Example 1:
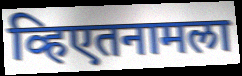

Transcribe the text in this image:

व्हिएतनामला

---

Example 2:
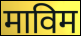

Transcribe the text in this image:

माविम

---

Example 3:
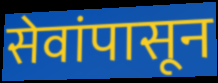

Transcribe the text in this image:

सेवांपासून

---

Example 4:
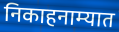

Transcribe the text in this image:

निकाहनाम्यात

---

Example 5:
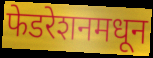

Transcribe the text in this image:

फेडरेशनमधून